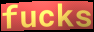
fucks